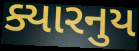
ક્યારનુય